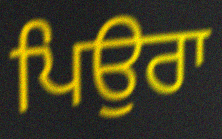
ਪਿਉਰਾ